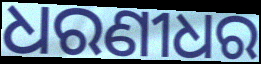
ଧରଣୀଧର